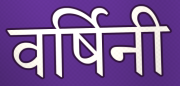
वर्षिनी